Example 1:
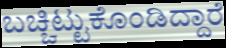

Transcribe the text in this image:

ಬಚ್ಚಿಟ್ಟುಕೊಂಡಿದ್ದಾರೆ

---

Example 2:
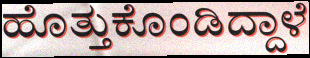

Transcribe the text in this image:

ಹೊತ್ತುಕೊಂಡಿದ್ದಾಳೆ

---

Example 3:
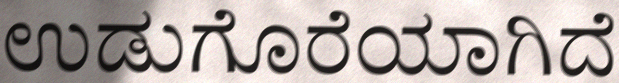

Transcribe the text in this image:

ಉಡುಗೊರೆಯಾಗಿದೆ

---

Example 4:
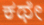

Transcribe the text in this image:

ಕಥೇ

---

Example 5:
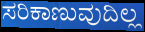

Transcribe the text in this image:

ಸರಿಕಾಣುವುದಿಲ್ಲ